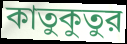
কাতুকুতুর